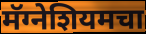
मॅग्नेशियमचा